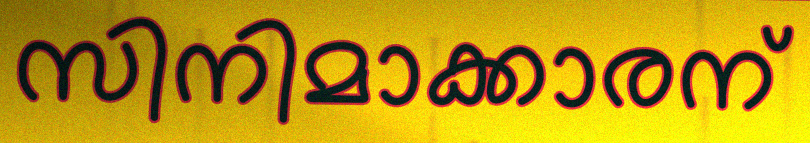
സിനിമാക്കാരന്